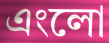
এংলো